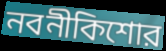
নবনীকিশোর